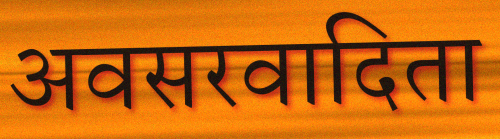
अवसरवादिता